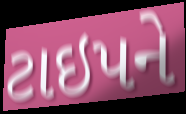
ટાઇપને